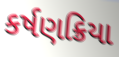
કર્ષણક્રિયા